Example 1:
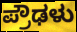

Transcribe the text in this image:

ಪ್ರೌಢಳು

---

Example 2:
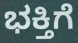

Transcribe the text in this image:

ಭಕ್ತಿಗೆ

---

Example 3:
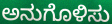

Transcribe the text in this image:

ಅನುಗೊಳಿಸು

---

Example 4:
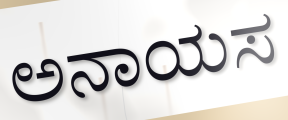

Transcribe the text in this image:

ಅನಾಯಸ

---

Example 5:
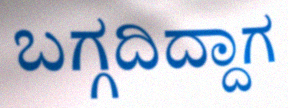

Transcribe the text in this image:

ಬಗ್ಗದಿದ್ದಾಗ